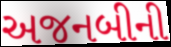
અજનબીની